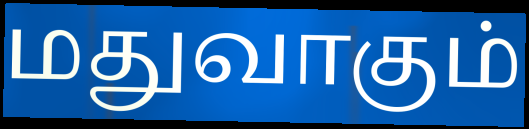
மதுவாகும்